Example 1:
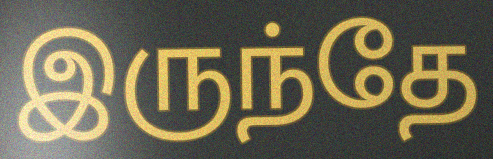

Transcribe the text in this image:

இருந்தே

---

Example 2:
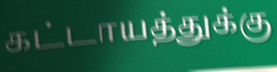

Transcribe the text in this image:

கட்டாயத்துக்கு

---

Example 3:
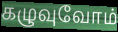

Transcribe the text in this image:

கழுவுவோம்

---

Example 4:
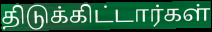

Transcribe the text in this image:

திடுக்கிட்டார்கள்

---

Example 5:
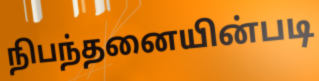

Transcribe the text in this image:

நிபந்தனையின்படி